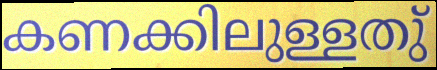
കണക്കിലുള്ളതു്